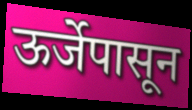
ऊर्जेपासून